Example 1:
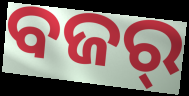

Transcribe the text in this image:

ବଜର୍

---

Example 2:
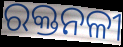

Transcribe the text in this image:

ରକ୍ତନଳୀ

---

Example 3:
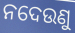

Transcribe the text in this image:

ନଦେଉଣୁ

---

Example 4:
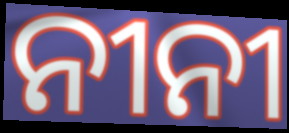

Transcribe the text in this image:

ନୀନୀ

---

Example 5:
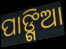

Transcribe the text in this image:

ପାଙ୍ଗିଆ